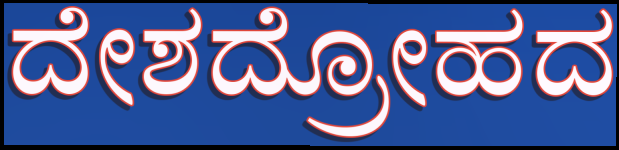
ದೇಶದ್ರೋಹದ